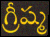
గ్రీష్మ